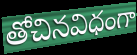
తోచినవిధంగా